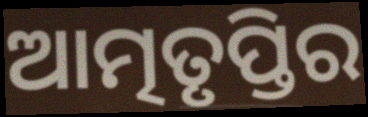
ଆତ୍ମତୃପ୍ତିର